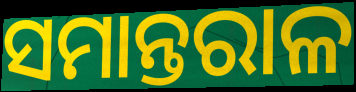
ସମାନ୍ତରାଳ